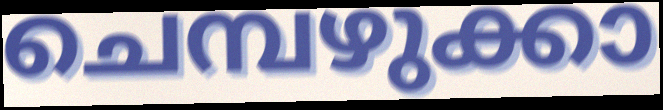
ചെമ്പഴുക്കാ